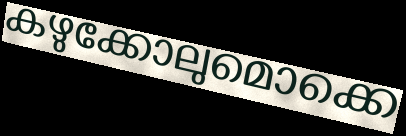
കഴുക്കോലുമൊക്കെ